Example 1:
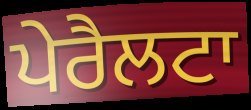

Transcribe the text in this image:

ਪੇਰੈਲਟਾ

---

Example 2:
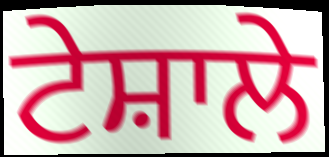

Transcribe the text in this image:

ਟੇਸ਼ਾਲੇ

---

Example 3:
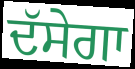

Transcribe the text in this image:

ਦੱਸੇਗਾ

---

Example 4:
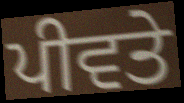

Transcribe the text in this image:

ਪੀਵਤੇ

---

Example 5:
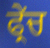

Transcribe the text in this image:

ਫ੍ਰੇਂਚ